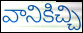
వానికిచ్చి